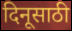
दिनूसाठी